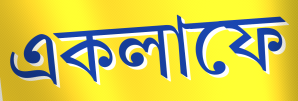
একলাফে